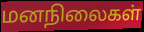
மனநிலைகள்